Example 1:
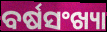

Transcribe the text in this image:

ବର୍ଷସଂଖ୍ୟା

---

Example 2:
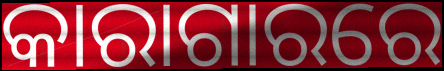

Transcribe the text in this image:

କାରାଗାରରେ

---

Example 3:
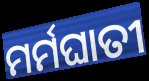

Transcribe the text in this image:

ମର୍ମଘାତୀ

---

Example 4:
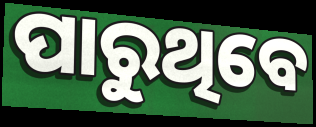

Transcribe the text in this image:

ପାରୁଥିବେ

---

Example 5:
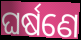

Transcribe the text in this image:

ଘର୍ଷଣେ